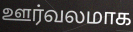
ஊர்வலமாக